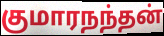
குமாரநந்தன்